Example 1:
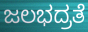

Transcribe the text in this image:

ಜಲಭದ್ರತೆ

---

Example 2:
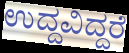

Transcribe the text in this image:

ಉದ್ದವಿದ್ದರೆ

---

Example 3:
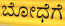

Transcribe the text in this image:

ಬೋಧೆಗೆ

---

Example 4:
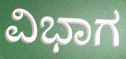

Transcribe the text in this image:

ವಿಭಾಗ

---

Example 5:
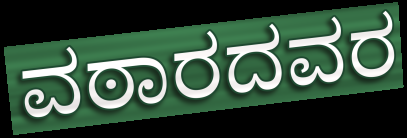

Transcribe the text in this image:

ವಠಾರದವರ